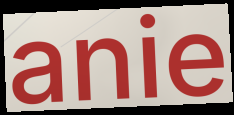
anie